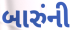
બારુંની